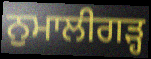
ਨੁਮਾਲੀਗੜ੍ਹ